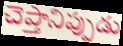
చెప్తానిప్పుడు